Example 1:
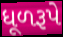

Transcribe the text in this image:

ધૂળરૂપે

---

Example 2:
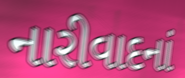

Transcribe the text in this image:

નારીવાદનાં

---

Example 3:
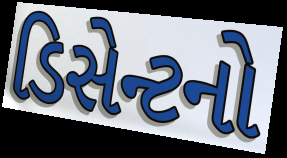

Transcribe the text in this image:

ડિસેન્ટનો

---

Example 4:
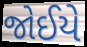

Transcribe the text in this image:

જોઈયે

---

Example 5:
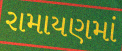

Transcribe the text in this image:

રામાયણમાં